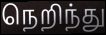
நெறிந்து